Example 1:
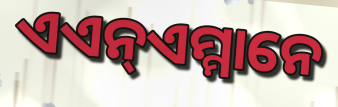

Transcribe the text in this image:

ଏଏନ୍ଏମ୍ମାନେ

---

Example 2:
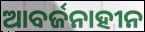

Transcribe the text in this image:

ଆବର୍ଜନାହୀନ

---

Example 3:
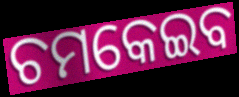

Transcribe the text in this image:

ଚମକେଇବ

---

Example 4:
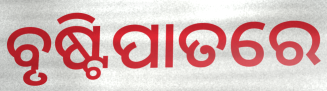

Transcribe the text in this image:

ବୃଷ୍ଟିପାତରେ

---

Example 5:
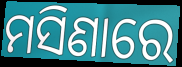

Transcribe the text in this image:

ମସିଣାରେ